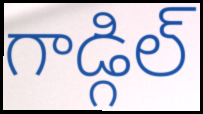
గాడ్గిల్